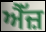
ਐੱਜ਼